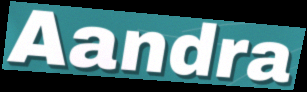
Aandra